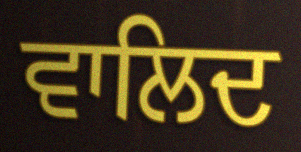
ਵਾਲਿਦ